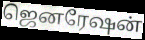
ஜெனரேஷன்